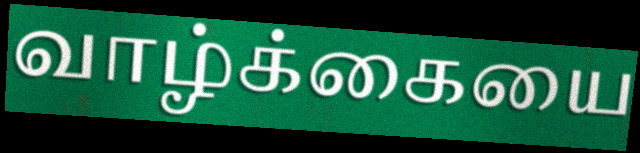
வாழ்க்கையை